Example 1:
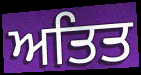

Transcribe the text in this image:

ਅਤਿਤ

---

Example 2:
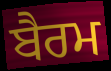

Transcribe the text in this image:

ਬੈਰਮ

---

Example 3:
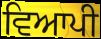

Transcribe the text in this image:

ਵਿਆਪੀ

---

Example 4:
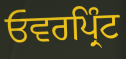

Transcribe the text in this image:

ਓਵਰਪ੍ਰਿੰਟ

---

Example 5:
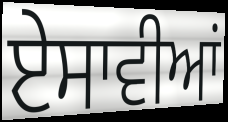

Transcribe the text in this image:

ਏਸਾਵੀਆਂ